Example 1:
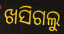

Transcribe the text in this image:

ଖସିଗଲୁ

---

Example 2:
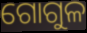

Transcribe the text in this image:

ଗୋଗୁଳ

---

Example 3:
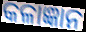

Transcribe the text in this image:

କଳାଜ୍ଞାନ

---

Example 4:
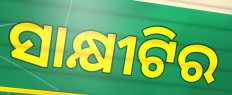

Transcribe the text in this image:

ସାକ୍ଷୀଟିର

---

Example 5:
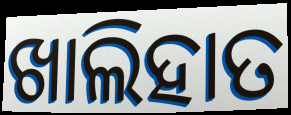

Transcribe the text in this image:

ଖାଲିହାତ